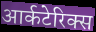
आर्कटेरिक्स